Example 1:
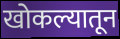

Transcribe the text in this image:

खोकल्यातून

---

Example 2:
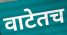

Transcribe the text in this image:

वाटेतच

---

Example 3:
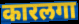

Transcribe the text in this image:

कारलगा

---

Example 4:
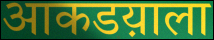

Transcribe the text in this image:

आकडय़ाला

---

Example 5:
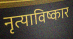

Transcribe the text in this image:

नृत्याविष्कार